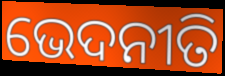
ଭେଦନୀତି